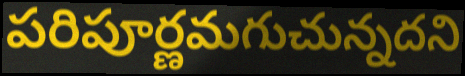
పరిపూర్ణమగుచున్నదని